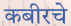
कबीरचे